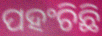
ପହଂଚିଛି